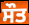
ਸੌਤ